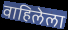
वाहिलेला